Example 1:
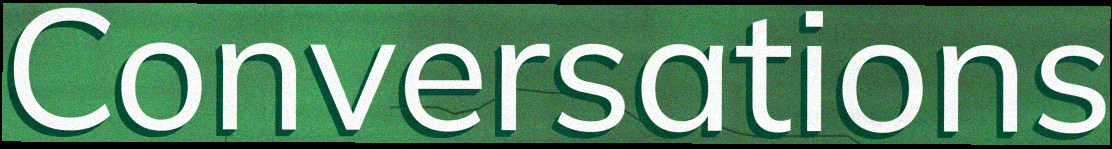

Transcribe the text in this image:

Conversations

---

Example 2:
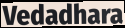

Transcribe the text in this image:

Vedadhara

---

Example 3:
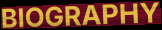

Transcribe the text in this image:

BIOGRAPHY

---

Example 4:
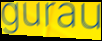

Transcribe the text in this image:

gurau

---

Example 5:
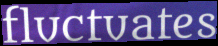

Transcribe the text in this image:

fluctuates